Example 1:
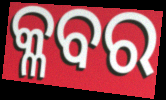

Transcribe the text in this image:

କ୍ଳବର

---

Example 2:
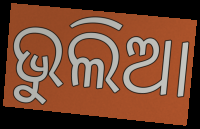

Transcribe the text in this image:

ଭୁଲିଆ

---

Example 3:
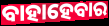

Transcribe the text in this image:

ବାହାହେବାର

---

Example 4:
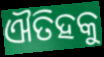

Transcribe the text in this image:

ଐତିହକୁ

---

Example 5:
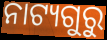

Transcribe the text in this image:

ନାଟ୍ୟଗୁରୁ